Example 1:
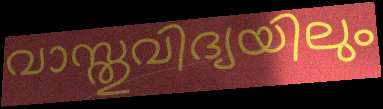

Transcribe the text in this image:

വാസ്തുവിദ്യയിലും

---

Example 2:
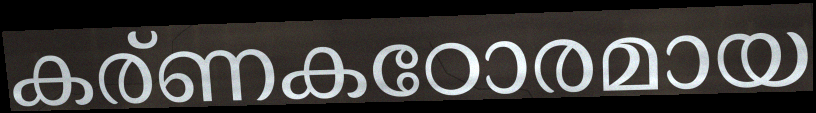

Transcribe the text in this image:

കര്ണകഠോരമായ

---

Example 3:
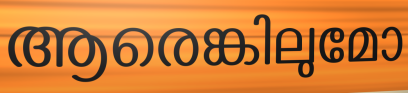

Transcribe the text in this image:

ആരെങ്കിലുമോ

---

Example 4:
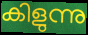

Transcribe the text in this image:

കിളുന്നു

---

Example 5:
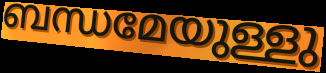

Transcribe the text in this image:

ബന്ധമേയുള്ളു